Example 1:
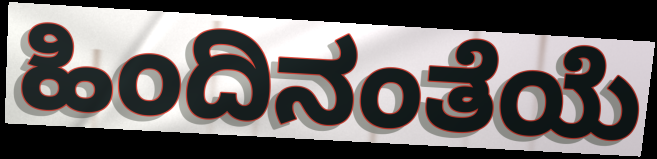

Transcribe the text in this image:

ಹಿಂದಿನಂತೆಯೆ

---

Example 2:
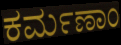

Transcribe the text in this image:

ಕರ್ಮಣಾಂ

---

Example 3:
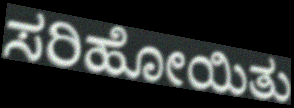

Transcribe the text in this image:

ಸರಿಹೋಯಿತು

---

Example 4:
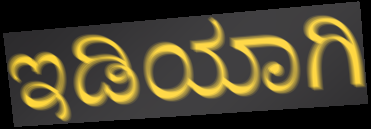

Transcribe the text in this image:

ಇಡಿಯಾಗಿ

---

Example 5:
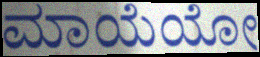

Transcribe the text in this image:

ಮಾಯೆಯೋ